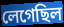
লেগেছিল